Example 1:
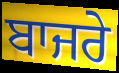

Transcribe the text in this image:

ਬਾਜਰੇ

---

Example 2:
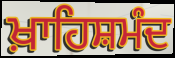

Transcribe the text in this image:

ਖ਼ਾਹਿਸ਼ਮੰਦ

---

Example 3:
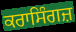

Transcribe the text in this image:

ਕਰਾਸਿੰਗਜ਼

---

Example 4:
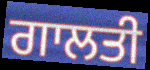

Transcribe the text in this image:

ਗਾਲਤੀ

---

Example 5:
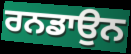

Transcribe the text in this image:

ਰਨਡਾਉਨ